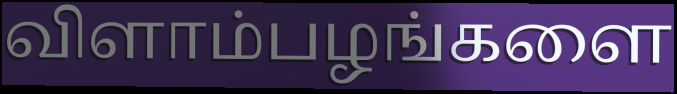
விளாம்பழங்களை